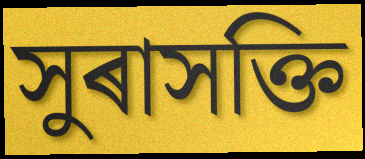
সুৰাসক্তি